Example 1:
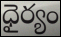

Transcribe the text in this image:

ధైర్యం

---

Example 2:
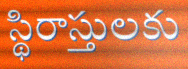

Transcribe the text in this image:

స్థిరాస్తులకు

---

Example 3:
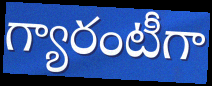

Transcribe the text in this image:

గ్యారంటీగా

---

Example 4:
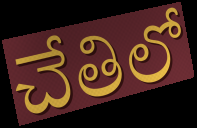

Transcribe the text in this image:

చేతిలో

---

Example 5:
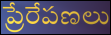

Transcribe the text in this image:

ప్రేరేపణలు